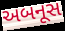
અબનૂસ